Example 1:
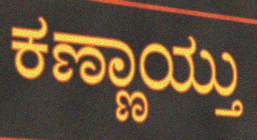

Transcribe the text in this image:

ಕಣ್ಣಾಯ್ತು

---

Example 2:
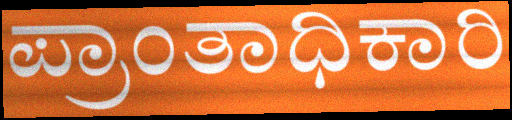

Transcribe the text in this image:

ಪ್ರಾಂತಾಧಿಕಾರಿ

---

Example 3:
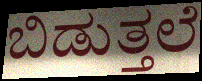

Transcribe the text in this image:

ಬಿಡುತ್ತಲೆ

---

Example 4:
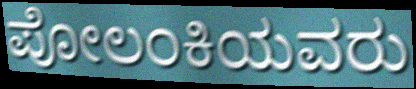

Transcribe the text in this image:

ಪೋಲಂಕಿಯವರು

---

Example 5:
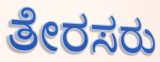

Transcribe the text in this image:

ತೇರಸರು